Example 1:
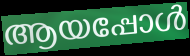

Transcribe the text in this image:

ആയപ്പോൾ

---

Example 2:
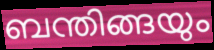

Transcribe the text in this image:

ബന്തിങ്ങയും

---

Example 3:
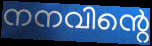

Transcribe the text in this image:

നനവിന്റെ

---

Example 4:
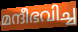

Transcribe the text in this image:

മന്ദീഭവിച്ച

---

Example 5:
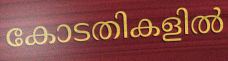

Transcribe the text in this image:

കോടതികളിൽ